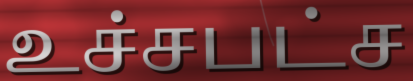
உச்சபட்ச